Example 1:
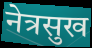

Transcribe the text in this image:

नेत्रसुख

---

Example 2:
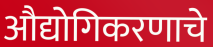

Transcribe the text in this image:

औद्योगिकरणाचे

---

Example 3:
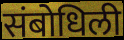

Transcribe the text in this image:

संबोधिली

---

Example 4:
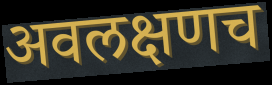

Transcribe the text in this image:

अवलक्षणच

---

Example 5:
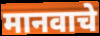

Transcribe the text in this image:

मानवाचे